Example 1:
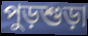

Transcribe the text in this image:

পুড়শুড়া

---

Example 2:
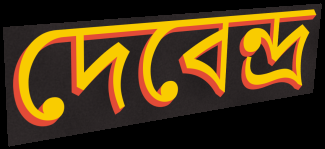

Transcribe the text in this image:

দেবেন্দ্র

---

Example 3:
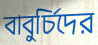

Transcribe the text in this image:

বাবুর্চিদের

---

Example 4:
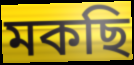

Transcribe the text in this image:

মকছি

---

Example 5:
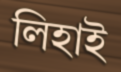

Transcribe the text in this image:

লিহাই